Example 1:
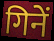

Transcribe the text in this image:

गिनें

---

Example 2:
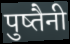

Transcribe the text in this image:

पुष्तैनी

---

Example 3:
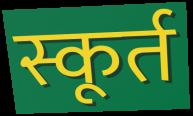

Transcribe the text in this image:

स्कूर्त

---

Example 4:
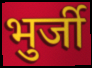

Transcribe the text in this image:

भुर्जी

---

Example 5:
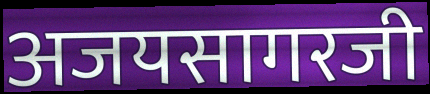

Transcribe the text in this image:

अजयसागरजी